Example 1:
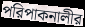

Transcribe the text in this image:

পরিপাকনালীর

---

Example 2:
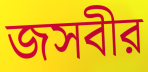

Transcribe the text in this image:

জসবীর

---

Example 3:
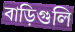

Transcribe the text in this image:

বাড়িগুলি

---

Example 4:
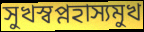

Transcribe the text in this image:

সুখস্বপ্নহাস্যমুখ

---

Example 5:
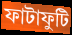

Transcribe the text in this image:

ফাটাফুটি